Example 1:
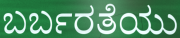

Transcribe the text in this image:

ಬರ್ಬರತೆಯು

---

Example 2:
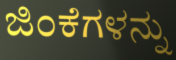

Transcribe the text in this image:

ಜಿಂಕೆಗಳನ್ನು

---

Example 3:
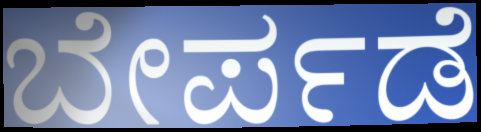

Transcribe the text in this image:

ಬೇರ್ಪಡೆ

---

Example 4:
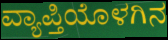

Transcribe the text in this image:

ವ್ಯಾಪ್ತಿಯೊಳಗಿನ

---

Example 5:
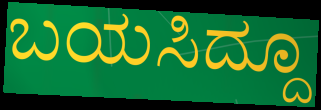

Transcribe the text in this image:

ಬಯಸಿದ್ದೂ